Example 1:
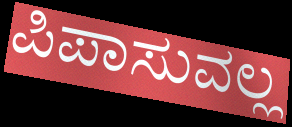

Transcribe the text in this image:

ಪಿಪಾಸುವಲ್ಲ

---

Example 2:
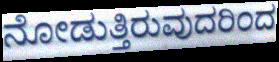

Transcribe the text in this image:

ನೋಡುತ್ತಿರುವುದರಿಂದ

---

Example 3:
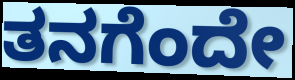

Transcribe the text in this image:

ತನಗೆಂದೇ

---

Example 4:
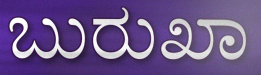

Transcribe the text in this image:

ಬುರುಖಾ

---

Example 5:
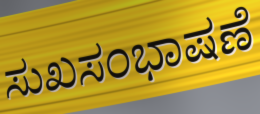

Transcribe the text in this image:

ಸುಖಸಂಭಾಷಣೆ